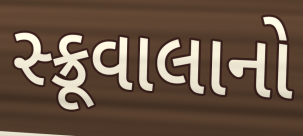
સ્ક્રૂવાલાનો